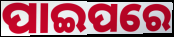
ପାଇପରେ